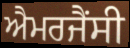
ਐਮਰਜੈਂਸੀ